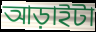
আড়াইটা